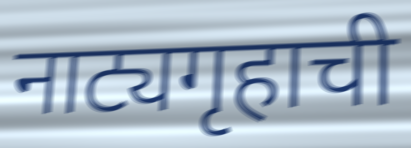
नाट्यगृहाची